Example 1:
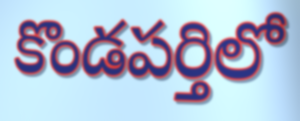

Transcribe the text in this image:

కొండపర్తిలో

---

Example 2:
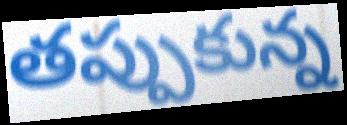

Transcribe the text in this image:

తప్పుకున్న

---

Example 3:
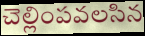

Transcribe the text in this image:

చెల్లింపవలసిన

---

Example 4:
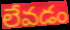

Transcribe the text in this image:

లేవడం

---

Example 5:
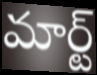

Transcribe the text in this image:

మార్ట్